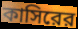
কাসিরের